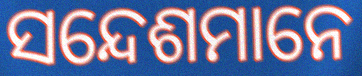
ସନ୍ଦେଶମାନେ